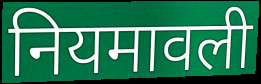
नियमावली